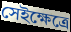
সেইক্ষেত্রে